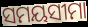
ସମୟସୀମା